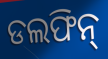
ଡଲଫିନ୍